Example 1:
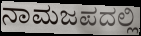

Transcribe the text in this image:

ನಾಮಜಪದಲ್ಲಿ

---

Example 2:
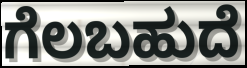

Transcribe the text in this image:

ಗೆಲಬಹುದೆ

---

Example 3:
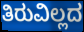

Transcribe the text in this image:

ತಿರುವಿಲ್ಲದ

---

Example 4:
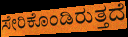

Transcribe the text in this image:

ಸೇರಿಕೊಂಡಿರುತ್ತದೆ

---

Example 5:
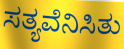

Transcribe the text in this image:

ಸತ್ಯವೆನಿಸಿತು